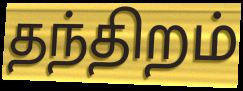
தந்திறம்